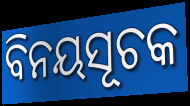
ବିନୟସୂଚକ